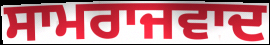
ਸਾਮਰਾਜਵਾਦ